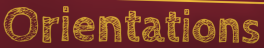
Orientations